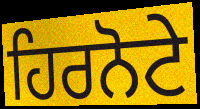
ਹਿਰਨੋਟੇ